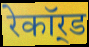
रेकॉर्ड